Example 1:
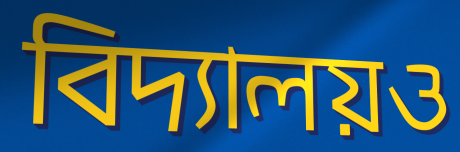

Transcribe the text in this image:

বিদ্যালয়ও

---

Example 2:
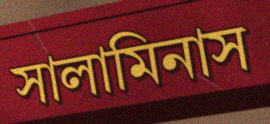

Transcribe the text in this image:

সালামিনাস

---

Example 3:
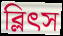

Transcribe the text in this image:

ব্লিৎস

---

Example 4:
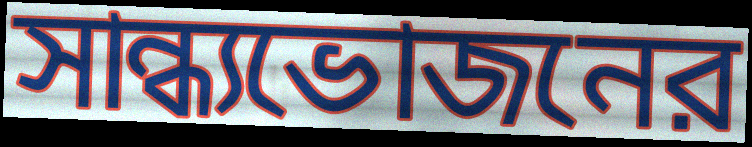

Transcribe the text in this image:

সান্ধ্যভোজনের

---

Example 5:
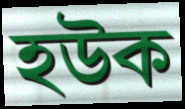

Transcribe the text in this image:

হউক